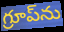
గ్రూప్‌ను